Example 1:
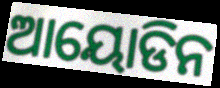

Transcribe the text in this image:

ଆୟୋଡିନ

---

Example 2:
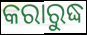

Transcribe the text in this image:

କରାରୁଦ୍ଧ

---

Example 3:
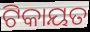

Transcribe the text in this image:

ଟିକାୟତ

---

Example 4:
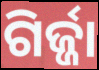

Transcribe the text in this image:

ଗିର୍ଜ୍ଜା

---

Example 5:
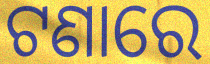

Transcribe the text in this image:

ଟଣାରେ